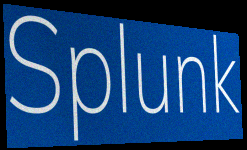
Splunk